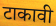
टाकावी